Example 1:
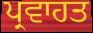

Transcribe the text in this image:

ਪ੍ਰਵਾਹਤ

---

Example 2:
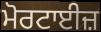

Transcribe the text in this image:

ਮੋਰਟਾਈਜ਼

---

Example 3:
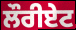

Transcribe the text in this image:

ਲੌਰੀਏਟ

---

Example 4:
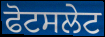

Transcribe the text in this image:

ਫੋਟਸਲੇਟ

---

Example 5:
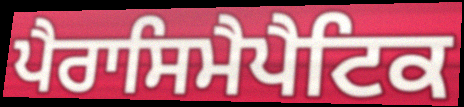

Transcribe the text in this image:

ਪੈਰਾਸਿਮੈਪੈਟਿਕ